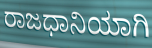
ರಾಜಧಾನಿಯಾಗಿ